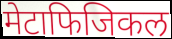
मेटाफिजिकल